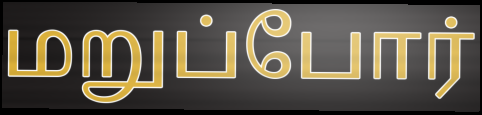
மறுப்போர்